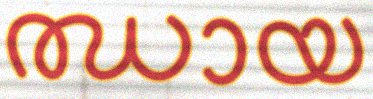
ഝായ